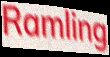
Ramling